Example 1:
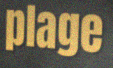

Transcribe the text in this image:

plage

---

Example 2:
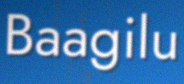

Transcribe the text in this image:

Baagilu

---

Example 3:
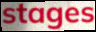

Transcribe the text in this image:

stages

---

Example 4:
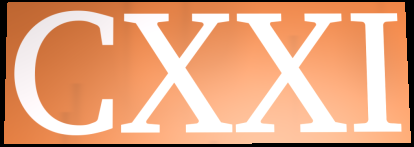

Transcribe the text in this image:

CXXI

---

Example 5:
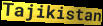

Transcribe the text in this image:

Tajikistan